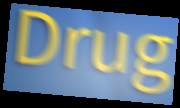
Drug